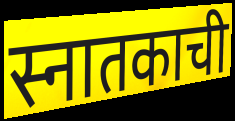
स्नातकाची